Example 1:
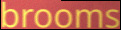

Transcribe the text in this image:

brooms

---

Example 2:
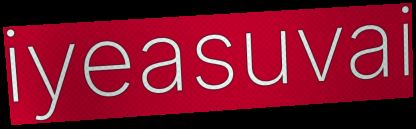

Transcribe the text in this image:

iyeasuvai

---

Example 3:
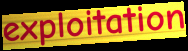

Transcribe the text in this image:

exploitation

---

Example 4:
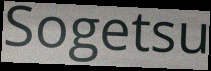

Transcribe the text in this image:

Sogetsu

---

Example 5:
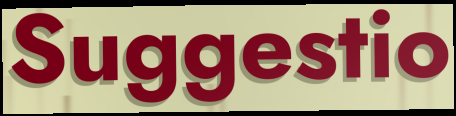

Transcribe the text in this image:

Suggestio